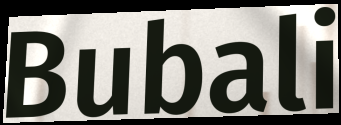
Bubali